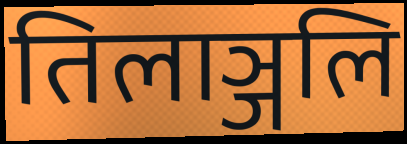
तिलाञ्जलि